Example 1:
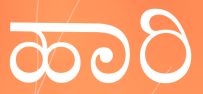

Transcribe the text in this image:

ಹಾರಿ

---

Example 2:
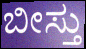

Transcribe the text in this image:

ಬೀಸ್ತು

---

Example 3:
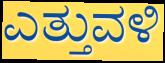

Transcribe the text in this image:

ಎತ್ತುವಳಿ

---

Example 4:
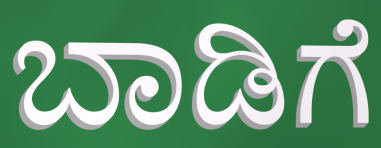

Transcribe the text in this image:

ಬಾಡಿಗೆ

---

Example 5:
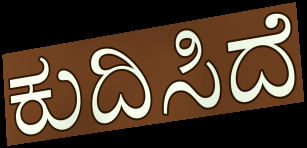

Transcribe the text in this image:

ಕುದಿಸಿದೆ